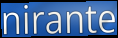
nirante